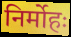
निर्मोहः